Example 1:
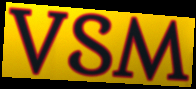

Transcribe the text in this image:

VSM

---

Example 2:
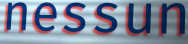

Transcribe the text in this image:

nessun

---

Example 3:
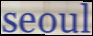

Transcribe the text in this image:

seoul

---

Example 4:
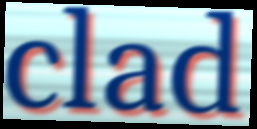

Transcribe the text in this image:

clad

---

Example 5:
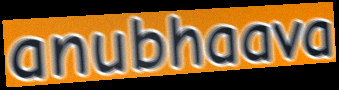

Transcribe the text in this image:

anubhaava